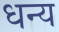
धन्य